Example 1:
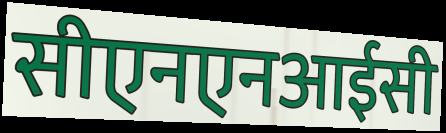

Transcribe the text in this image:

सीएनएनआईसी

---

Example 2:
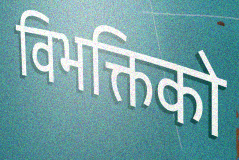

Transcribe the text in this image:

विभक्तिको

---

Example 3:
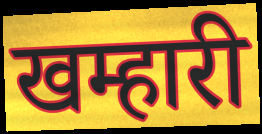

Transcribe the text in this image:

खम्हारी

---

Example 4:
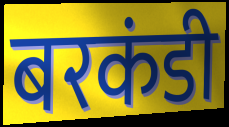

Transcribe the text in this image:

बरकंडी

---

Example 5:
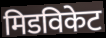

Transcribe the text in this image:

मिडविकेट